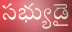
సభ్యుడై